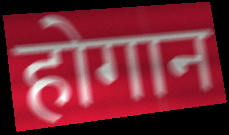
होगान